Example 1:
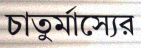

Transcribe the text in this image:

চাতুর্মাস্যের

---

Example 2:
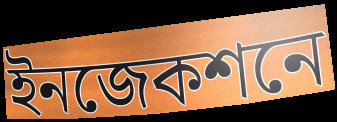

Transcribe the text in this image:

ইনজেকশনে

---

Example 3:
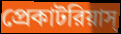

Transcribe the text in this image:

প্রেকাটরিয়াস্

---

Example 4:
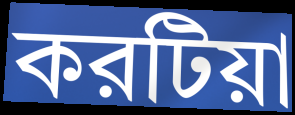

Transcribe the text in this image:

করটিয়া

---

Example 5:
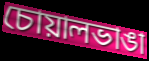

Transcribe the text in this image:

চোয়ালভাঙা